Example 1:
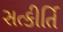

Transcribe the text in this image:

સત્કીર્તિ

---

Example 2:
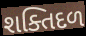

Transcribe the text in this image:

શક્તિદળ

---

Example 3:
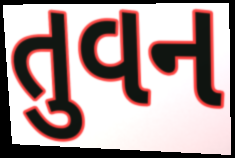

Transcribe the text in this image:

તુવન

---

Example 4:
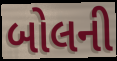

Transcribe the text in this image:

બોલની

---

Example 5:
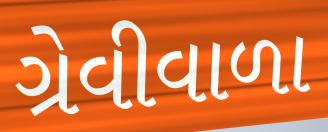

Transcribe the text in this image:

ગ્રેવીવાળા